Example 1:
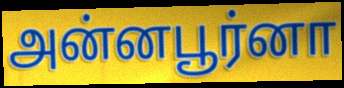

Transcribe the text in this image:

அன்னபூர்னா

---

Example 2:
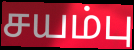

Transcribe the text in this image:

சயம்பு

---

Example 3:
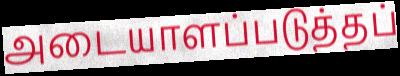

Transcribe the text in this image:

அடையாளப்படுத்தப்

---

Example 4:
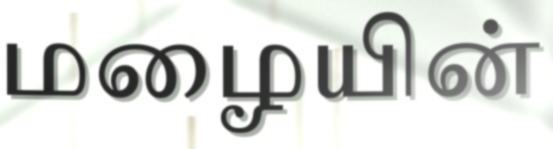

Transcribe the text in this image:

மழையின்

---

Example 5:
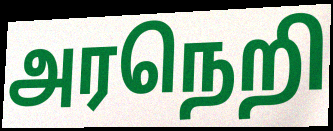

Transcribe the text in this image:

அரநெறி